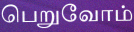
பெறுவோம்